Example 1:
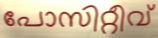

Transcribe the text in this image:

പോസിറ്റീവ്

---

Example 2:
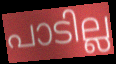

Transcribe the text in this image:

പാടില്ല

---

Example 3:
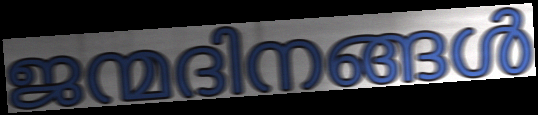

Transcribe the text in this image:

ജന്മദിനങ്ങൾ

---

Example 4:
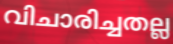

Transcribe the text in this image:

വിചാരിച്ചതല്ല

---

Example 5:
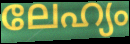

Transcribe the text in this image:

ലേഹ്യം